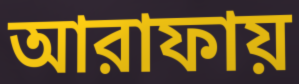
আরাফায়